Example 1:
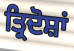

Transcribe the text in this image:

ਤ੍ਰਿਦੋਸ਼ਾਂ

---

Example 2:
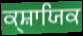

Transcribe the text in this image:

ਕ੍ਸ਼ਾਯਿਕ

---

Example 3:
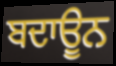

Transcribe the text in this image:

ਬਦਾਊਨ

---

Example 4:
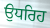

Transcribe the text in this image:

ਉਧਰਿਹ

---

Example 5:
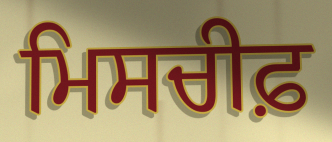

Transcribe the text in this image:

ਮਿਸਚੀਫ਼